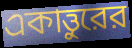
একাত্তুরের